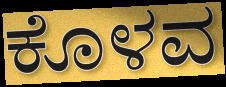
ಕೊಳವ